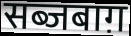
सब्जबाग़